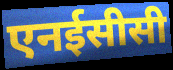
एनईसीसी